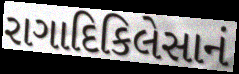
રાગાદિકિલેસાનં